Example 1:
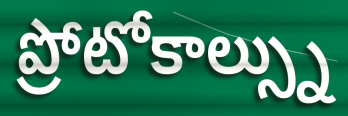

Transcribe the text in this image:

ప్రోటోకాల్స్ను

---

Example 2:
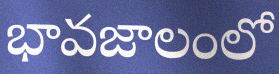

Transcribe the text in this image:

భావజాలంలో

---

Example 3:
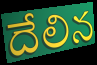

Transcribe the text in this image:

దేలిన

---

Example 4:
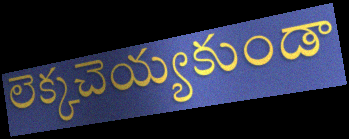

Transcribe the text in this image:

లెక్కచెయ్యకుండా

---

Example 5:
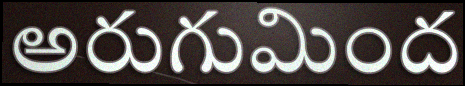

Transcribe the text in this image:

అరుగుమింద